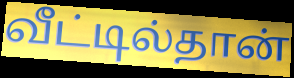
வீட்டில்தான்